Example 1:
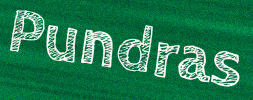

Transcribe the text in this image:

Pundras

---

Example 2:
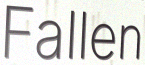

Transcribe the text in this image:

Fallen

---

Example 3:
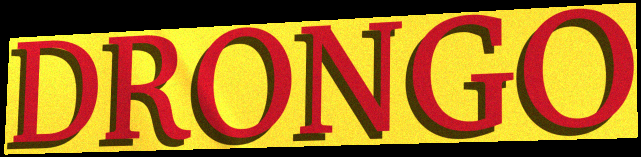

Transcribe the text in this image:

DRONGO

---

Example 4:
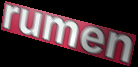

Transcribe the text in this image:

rumen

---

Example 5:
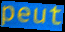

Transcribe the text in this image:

peut